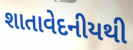
શાતાવેદનીયથી